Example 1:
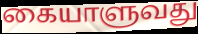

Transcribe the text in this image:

கையாளுவது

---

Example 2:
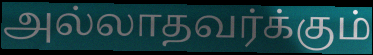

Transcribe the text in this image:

அல்லாதவர்க்கும்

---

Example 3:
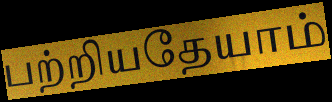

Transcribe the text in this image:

பற்றியதேயாம்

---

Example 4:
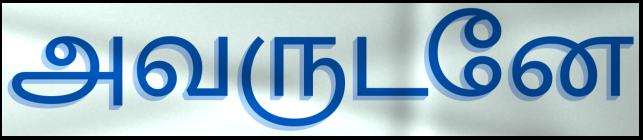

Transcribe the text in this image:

அவருடனே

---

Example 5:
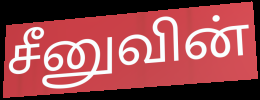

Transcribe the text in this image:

சீனுவின்